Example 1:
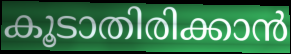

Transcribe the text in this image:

കൂടാതിരിക്കാൻ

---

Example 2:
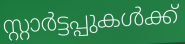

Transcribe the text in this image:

സ്റ്റാർട്ടപ്പുകൾക്ക്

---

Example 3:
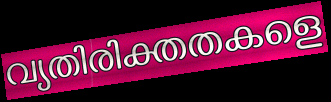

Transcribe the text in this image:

വ്യതിരിക്തതകളെ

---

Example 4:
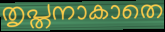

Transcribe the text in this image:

തൃപ്തനാകാതെ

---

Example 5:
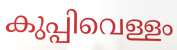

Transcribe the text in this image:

കുപ്പിവെള്ളം